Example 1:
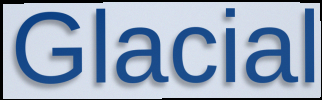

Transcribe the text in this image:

Glacial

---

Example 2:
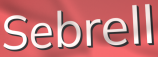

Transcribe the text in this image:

Sebrell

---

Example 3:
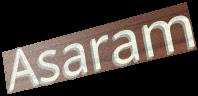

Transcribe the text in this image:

Asaram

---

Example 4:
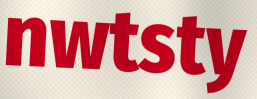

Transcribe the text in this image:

nwtsty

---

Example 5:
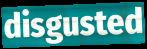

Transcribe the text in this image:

disgusted